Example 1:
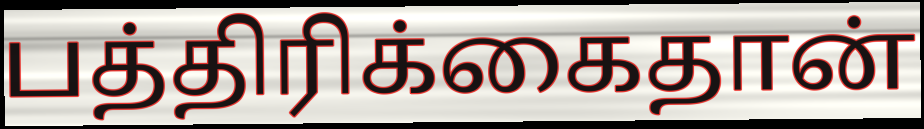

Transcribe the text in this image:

பத்திரிக்கைதான்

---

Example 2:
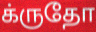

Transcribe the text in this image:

க்ருதோ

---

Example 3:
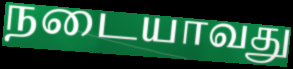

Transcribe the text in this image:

நடையாவது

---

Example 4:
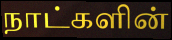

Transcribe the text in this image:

நாட்களின்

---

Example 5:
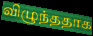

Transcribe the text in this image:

விழுந்ததாக